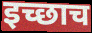
इच्छाच